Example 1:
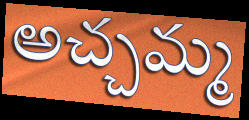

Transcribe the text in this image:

అచ్చమ్మ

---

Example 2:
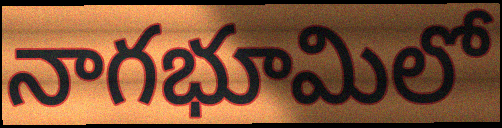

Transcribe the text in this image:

నాగభూమిలో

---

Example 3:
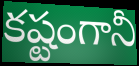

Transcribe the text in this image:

కష్టంగానీ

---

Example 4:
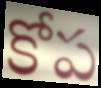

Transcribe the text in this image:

కోప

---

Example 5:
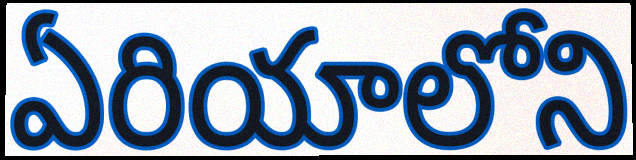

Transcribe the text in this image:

ఏరియాలోని